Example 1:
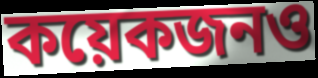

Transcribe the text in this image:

কয়েকজনও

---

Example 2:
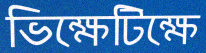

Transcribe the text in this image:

ভিক্ষেটিক্ষে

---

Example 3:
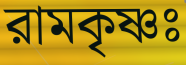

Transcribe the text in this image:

রামকৃষ্ণঃ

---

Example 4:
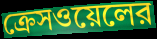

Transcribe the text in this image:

ক্রেসওয়েলের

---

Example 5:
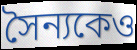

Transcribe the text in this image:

সৈন্যকেও